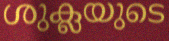
ശുക്ലയുടെ